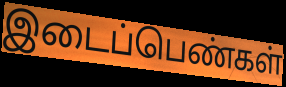
இடைப்பெண்கள்